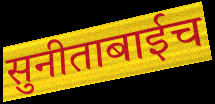
सुनीताबाईच